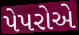
પેપરોએ